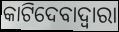
କାଟିଦେବାଦ୍ଵାରା